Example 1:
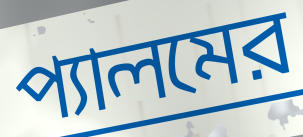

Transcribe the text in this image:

প্যালমের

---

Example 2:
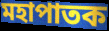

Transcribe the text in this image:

মহাপাতক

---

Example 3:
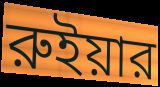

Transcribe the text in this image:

রুইয়ার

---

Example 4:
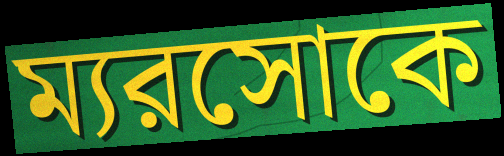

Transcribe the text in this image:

ম্যরসোকে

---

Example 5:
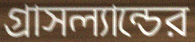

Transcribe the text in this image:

গ্রাসল্যান্ডের